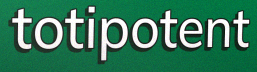
totipotent